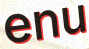
enu